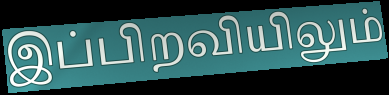
இப்பிறவியிலும்